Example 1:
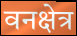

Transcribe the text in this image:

वनक्षेत्र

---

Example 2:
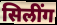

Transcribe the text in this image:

सिलींग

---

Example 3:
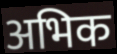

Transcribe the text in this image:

अभिक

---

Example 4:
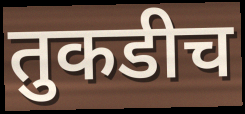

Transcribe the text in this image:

तुकडीच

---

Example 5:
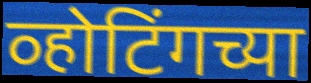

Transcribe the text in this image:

व्होटिंगच्या